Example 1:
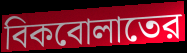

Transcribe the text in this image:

বিকবোলাতের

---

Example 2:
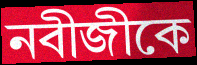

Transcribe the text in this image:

নবীজীকে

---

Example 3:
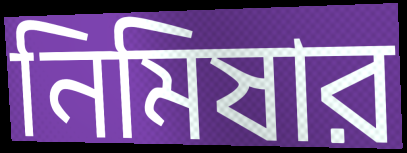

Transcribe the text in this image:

নিমিষার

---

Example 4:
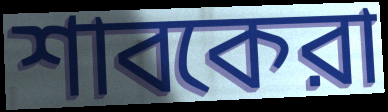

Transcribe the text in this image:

শাবকেরা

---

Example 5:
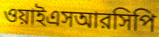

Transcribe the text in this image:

ওয়াইএসআরসিপি